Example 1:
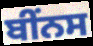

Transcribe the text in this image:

ਬੀਂਨਸ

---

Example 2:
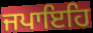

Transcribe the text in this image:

ਜਪਾਇਹਿ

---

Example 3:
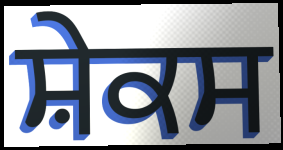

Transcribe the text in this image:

ਸ਼ੇਕਸ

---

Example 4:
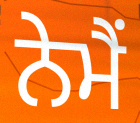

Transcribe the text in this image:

ਨੇਮੈਂ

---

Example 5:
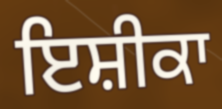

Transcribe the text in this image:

ਇਸ਼ੀਕਾ